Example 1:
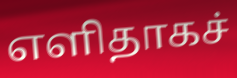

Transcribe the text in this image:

எளிதாகச்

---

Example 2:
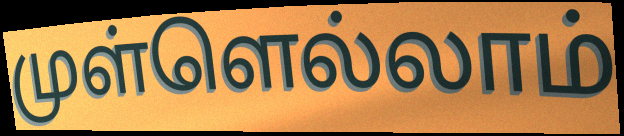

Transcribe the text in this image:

முள்ளெல்லாம்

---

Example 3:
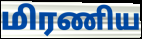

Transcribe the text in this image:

மிரணிய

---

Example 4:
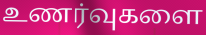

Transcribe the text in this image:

உணர்வுகளை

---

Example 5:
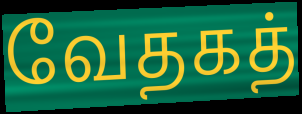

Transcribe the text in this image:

வேதகத்